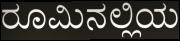
ರೂಮಿನಲ್ಲಿಯ